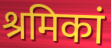
श्रमिकां